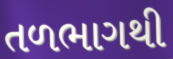
તળભાગથી